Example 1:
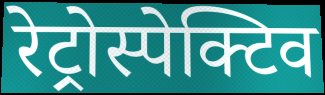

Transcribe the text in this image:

रेट्रोस्पेक्टिव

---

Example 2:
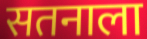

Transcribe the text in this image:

सतनाला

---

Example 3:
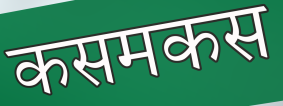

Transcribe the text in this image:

कसमकस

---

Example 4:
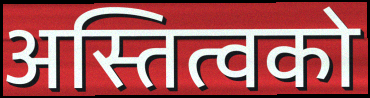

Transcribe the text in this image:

अस्तित्वको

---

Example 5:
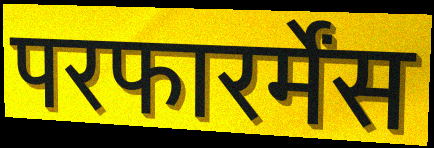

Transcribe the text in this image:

परफारर्मेंस